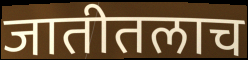
जातीतलाच